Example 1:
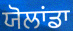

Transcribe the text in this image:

ਯੋਲਾਂਡਾ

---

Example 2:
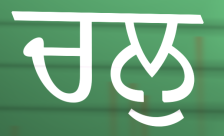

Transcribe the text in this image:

ਚਲੁ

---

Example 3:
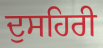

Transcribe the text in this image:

ਦੁਸਹਿਰੀ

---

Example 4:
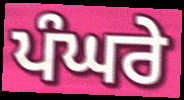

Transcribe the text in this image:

ਪੰਘਰੇ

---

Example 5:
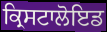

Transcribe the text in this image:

ਕ੍ਰਿਸਟਾਲੋਇਡ